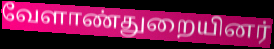
வேளாண்துறையினர்